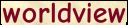
worldview